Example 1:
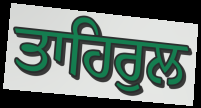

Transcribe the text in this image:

ਤਾਹਿਰੁਲ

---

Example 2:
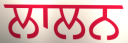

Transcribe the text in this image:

ਲਾਲਨ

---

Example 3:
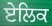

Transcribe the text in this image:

ਏਲਿਕ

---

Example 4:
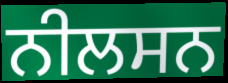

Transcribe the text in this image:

ਨੀਲਸਨ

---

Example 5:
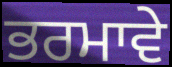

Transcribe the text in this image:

ਭਰਮਾਵੇ